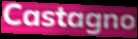
Castagno